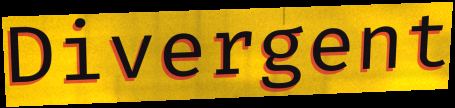
Divergent